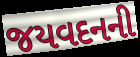
જયવદનની